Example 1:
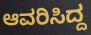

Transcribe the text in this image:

ಆವರಿಸಿದ್ದ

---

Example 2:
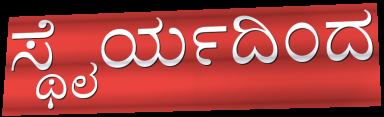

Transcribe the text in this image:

ಸ್ಥೈರ್ಯದಿಂದ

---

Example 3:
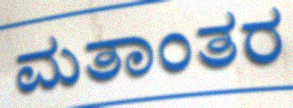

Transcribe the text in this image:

ಮತಾಂತರ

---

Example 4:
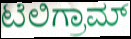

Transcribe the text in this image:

ಟೆಲಿಗ್ರಾಮ್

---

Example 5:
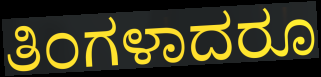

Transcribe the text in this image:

ತಿಂಗಳಾದರೂ